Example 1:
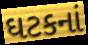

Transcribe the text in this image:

ઘટકનાં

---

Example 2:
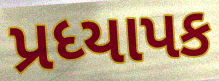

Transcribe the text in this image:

પ્રધ્યાપક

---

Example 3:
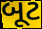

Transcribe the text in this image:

બૂટ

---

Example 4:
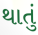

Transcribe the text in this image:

થાતું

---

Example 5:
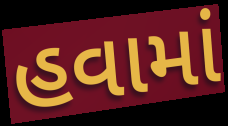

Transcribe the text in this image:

હવામાં